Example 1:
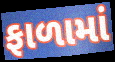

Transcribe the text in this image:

ફાળામાં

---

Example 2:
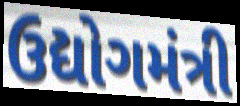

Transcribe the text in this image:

ઉદ્યોગમંત્રી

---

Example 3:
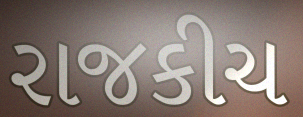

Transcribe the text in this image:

રાજકીચ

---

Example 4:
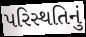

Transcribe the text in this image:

પરિસ્થતિનું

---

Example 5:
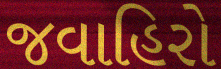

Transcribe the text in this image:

જવાહિરો